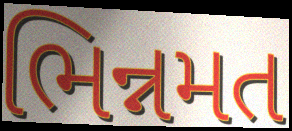
ભિન્નમત